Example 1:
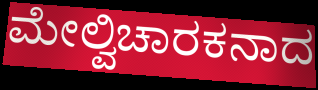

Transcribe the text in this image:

ಮೇಲ್ವಿಚಾರಕನಾದ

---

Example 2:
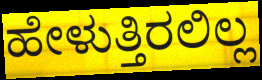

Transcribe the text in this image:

ಹೇಳುತ್ತಿರಲಿಲ್ಲ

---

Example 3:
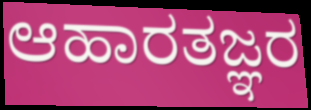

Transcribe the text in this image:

ಆಹಾರತಜ್ಞರ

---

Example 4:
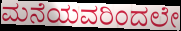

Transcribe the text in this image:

ಮನೆಯವರಿಂದಲೇ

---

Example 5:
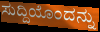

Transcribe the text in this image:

ಸುದ್ದಿಯೊಂದನ್ನು